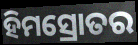
ହିମସ୍ରୋତର